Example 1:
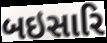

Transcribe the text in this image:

બઇસારિ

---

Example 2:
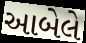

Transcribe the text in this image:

આબેલે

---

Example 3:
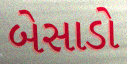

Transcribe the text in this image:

બેસાડો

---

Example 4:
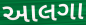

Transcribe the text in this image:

આલગા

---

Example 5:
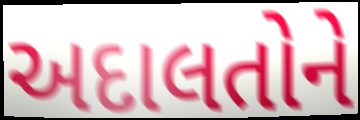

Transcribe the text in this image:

અદાલતોને